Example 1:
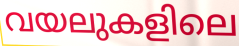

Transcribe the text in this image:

വയലുകളിലെ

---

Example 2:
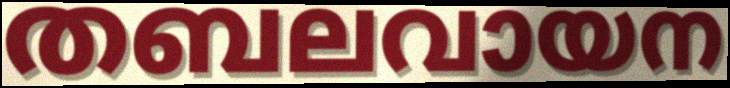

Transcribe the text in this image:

തബലവായന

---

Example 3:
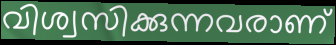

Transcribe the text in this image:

വിശ്വസിക്കുന്നവരാണ്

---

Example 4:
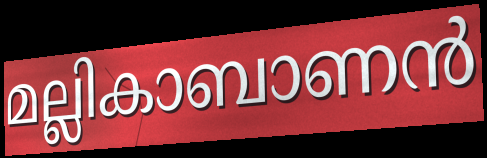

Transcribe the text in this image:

മല്ലികാബാണൻ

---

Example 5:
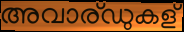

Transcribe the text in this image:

അവാര്ഡുകള്